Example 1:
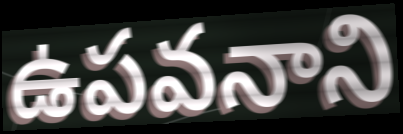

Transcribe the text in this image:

ఉపవనాని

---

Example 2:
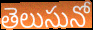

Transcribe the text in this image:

తెలుసునో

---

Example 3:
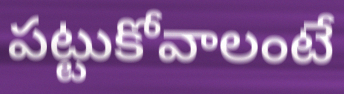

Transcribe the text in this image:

పట్టుకోవాలంటే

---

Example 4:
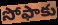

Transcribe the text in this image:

సోఫాకు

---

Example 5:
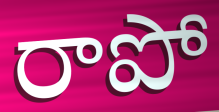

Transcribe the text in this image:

రాపో